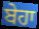
ਬੇਹਾ